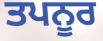
ਤਪਨੂਰ